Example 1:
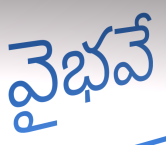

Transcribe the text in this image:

వైభవే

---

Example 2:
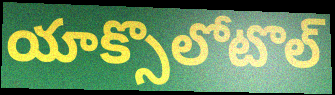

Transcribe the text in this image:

యాక్సొలోటొల్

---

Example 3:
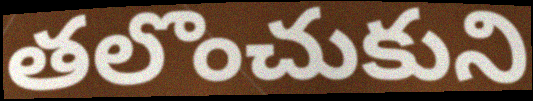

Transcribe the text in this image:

తలొంచుకుని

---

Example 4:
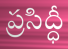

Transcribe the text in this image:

ప్రసిద్ధీ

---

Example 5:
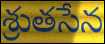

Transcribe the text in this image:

శ్రుతసేన